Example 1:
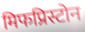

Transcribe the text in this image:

मिफप्रिस्टोन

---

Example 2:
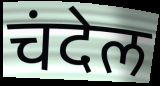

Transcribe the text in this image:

चंदेल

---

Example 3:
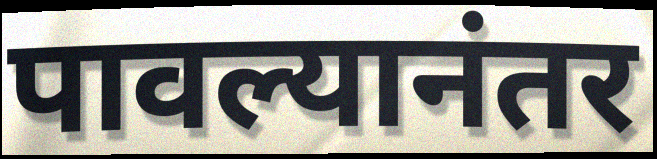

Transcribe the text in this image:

पावल्यानंतर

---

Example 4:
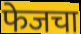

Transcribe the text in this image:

फेजचा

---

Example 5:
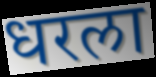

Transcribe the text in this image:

धरला